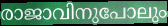
രാജാവിനുപോലും